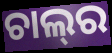
ଚାଲ୍‌ର